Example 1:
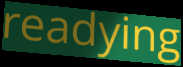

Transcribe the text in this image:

readying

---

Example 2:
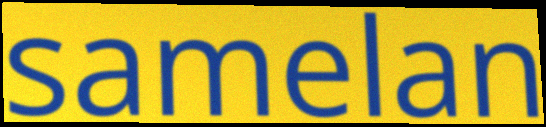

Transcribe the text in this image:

samelan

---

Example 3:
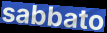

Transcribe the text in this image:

sabbato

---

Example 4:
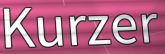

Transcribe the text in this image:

Kurzer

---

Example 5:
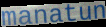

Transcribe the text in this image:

manatun